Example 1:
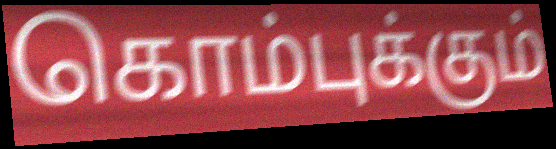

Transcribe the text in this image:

கொம்புக்கும்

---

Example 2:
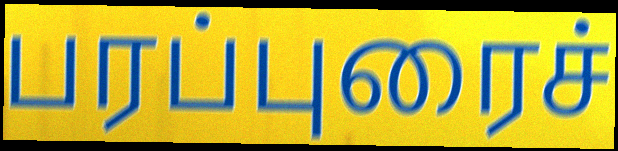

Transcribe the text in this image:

பரப்புரைச்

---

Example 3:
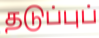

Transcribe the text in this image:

தடுப்புப்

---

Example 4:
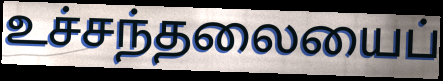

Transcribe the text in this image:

உச்சந்தலையைப்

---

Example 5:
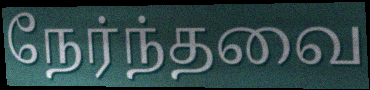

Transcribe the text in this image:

நேர்ந்தவை